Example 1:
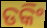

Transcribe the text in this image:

ଡକିଂ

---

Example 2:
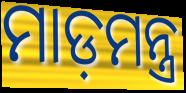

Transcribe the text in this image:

ମାଡ଼ମନ୍ତ୍ର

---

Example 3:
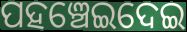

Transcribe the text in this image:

ପହଞ୍ଚେଇଦେଇ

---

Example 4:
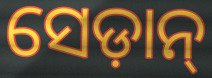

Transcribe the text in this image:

ସେଡ଼ାନ୍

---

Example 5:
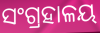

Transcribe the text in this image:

ସଂଗ୍ରହାଳୟ